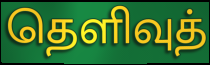
தெளிவுத்